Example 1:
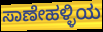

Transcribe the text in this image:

ಸಾಣೇಹಳ್ಳಿಯ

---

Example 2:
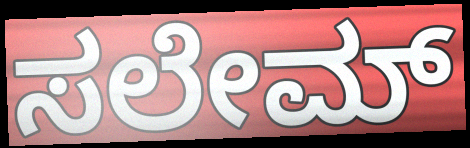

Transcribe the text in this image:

ಸಲೇಮ್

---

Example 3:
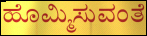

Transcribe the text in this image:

ಹೊಮ್ಮಿಸುವಂತೆ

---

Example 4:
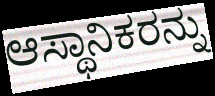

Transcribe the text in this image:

ಆಸ್ಥಾನಿಕರನ್ನು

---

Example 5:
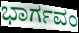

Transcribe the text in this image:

ಭಾರ್ಗವಂ